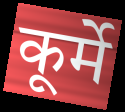
कूर्मे